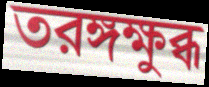
তরঙ্গক্ষুব্ধ